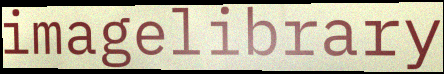
imagelibrary